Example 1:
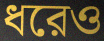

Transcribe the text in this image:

ধরেও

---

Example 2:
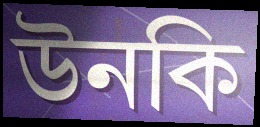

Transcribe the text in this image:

উনকি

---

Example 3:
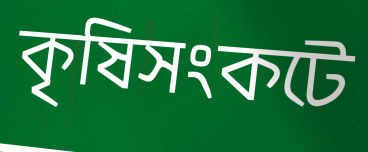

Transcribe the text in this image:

কৃষিসংকটে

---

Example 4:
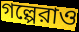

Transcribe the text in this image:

গল্পেরাও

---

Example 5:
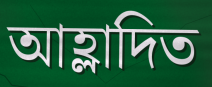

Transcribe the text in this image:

আহ্লাদিত